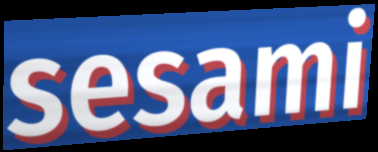
sesami